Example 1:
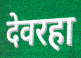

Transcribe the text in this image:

देवरहा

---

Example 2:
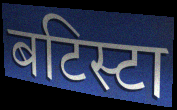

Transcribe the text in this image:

बटिस्टा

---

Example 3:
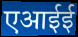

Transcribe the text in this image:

एआईई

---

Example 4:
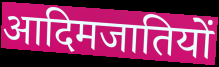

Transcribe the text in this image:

आदिमजातियों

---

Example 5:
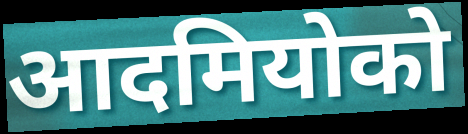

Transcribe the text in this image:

आदमियोको